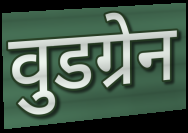
वुडग्रेन